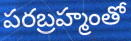
పరబ్రహ్మంతో